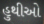
હુથીઓ